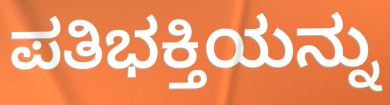
ಪತಿಭಕ್ತಿಯನ್ನು